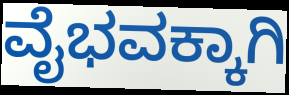
ವೈಭವಕ್ಕಾಗಿ